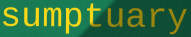
sumptuary